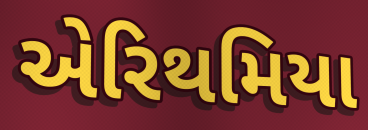
એરિથમિયા